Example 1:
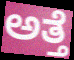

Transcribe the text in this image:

ಅತ್ತೆ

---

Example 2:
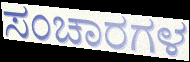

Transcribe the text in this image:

ಸಂಚಾರಗಳ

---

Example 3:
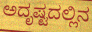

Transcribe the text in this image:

ಅದೃಷ್ಟದಲ್ಲಿನ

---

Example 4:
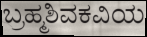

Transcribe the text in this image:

ಬ್ರಹ್ಮಶಿವಕವಿಯ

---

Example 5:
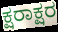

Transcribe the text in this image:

ಕ್ಷರಾಕ್ಷರ